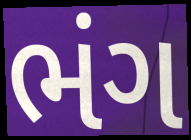
ભંગ